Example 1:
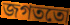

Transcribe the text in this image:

জগততো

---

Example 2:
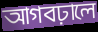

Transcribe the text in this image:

আগবঢ়ালে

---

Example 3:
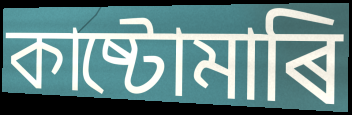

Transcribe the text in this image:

কাষ্টোমাৰি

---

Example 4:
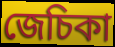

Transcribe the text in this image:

জেচিকা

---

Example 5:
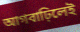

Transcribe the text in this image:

আগবাঢ়িলেই